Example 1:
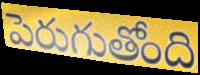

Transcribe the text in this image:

పెరుగుతోంది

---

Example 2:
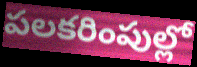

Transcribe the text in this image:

పలకరింపుల్లో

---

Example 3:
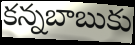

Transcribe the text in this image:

కన్నబాబుకు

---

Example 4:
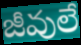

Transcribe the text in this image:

జీవులే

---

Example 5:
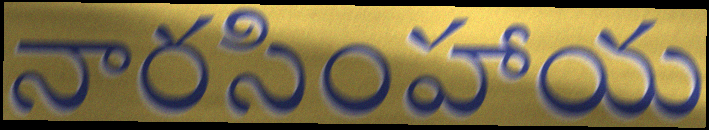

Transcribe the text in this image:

నారసింహాయ